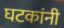
घटकांनी